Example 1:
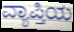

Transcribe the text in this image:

ವ್ಯಾಪ್ತಿಯ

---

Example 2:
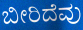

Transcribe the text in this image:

ಬೀರಿದೆವು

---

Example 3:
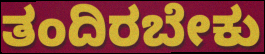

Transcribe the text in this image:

ತಂದಿರಬೇಕು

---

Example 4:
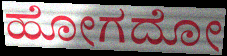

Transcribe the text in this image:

ಹೋಗದೋ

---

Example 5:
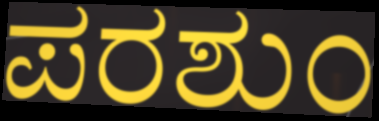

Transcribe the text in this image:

ಪರಶುಂ